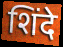
शिंदे